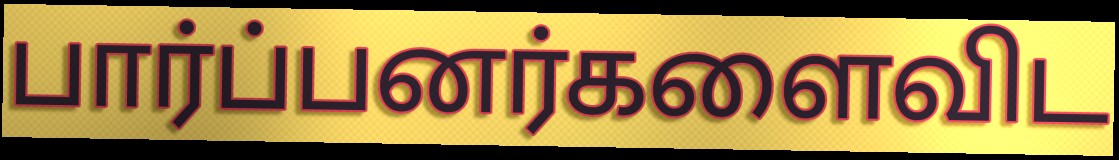
பார்ப்பனர்களைவிட